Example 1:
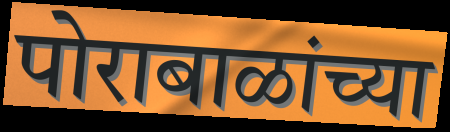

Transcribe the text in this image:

पोराबाळांच्या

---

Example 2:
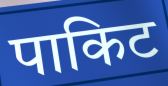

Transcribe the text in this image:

पाकिट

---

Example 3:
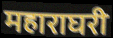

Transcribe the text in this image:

महाराघरी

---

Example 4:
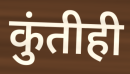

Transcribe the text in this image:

कुंतीही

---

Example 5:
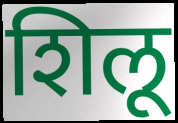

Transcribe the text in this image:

शिलू